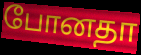
போனதா